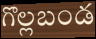
గొల్లబండ